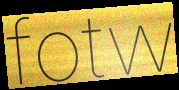
fotw